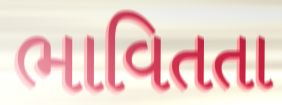
ભાવિતતા